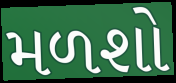
મળશો